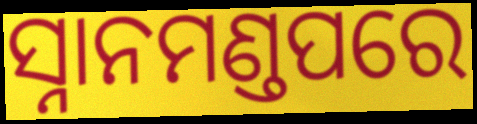
ସ୍ନାନମଣ୍ଡପରେ